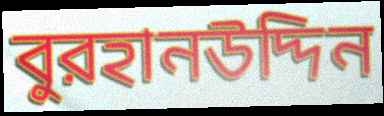
বুরহানউদ্দিন